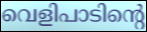
വെളിപാടിന്റെ